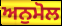
ਅਨੁਮੋਲ